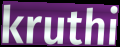
kruthi